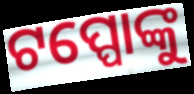
ଟପ୍ପୋଙ୍କୁ